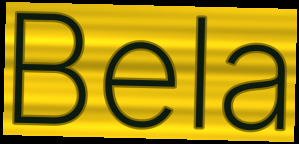
Bela